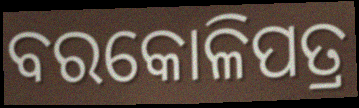
ବରକୋଳିପତ୍ର